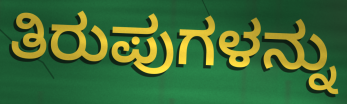
ತಿರುಪುಗಳನ್ನು